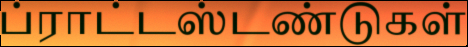
ப்ராட்டஸ்டண்டுகள்